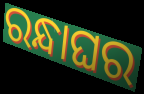
ରନ୍ଧାଘର